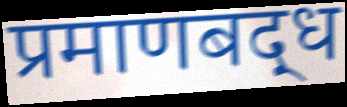
प्रमाणबद्ध